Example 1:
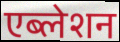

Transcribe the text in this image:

एब्लेशन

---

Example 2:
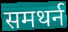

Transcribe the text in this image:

समथर्न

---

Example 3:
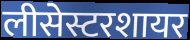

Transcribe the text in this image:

लीसेस्टरशायर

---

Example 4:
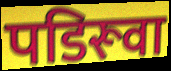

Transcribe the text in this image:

पडिरूवा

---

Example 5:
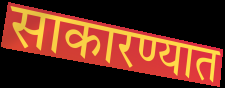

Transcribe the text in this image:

साकारण्यात